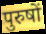
पुरुषों